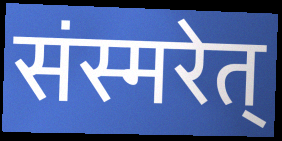
संस्मरेत्